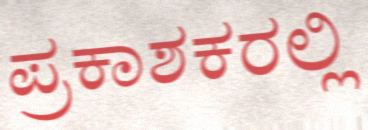
ಪ್ರಕಾಶಕರಲ್ಲಿ